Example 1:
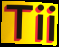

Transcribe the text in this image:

Tii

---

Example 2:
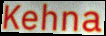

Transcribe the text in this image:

Kehna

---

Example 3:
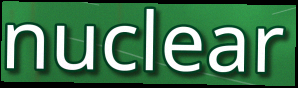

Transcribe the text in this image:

nuclear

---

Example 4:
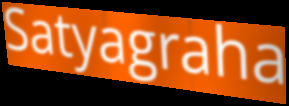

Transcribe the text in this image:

Satyagraha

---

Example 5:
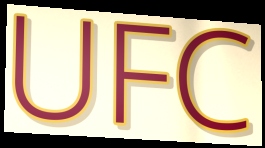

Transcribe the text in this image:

UFC